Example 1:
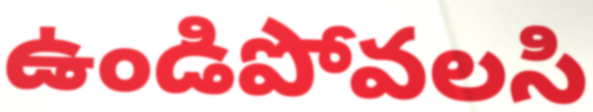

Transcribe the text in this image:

ఉండిపోవలసి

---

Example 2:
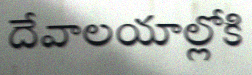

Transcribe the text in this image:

దేవాలయాల్లోకి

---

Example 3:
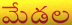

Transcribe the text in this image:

మేడల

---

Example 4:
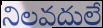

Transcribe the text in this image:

నిలవదులే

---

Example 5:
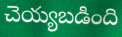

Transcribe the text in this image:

చెయ్యబడింది